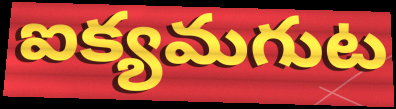
ఐక్యమగుట